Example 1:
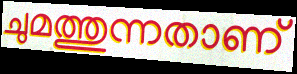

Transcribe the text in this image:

ചുമത്തുന്നതാണ്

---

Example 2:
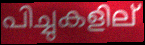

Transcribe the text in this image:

പിച്ചുകളില്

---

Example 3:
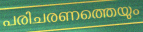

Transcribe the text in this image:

പരിചരണത്തെയും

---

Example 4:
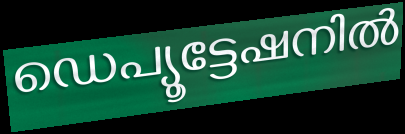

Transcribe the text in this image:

ഡെപ്യൂട്ടേഷനിൽ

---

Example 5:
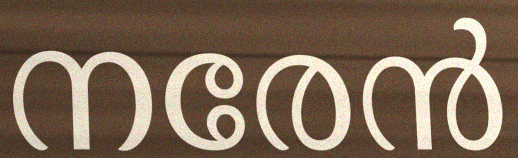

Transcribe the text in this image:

നരേൻ